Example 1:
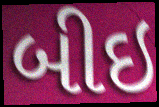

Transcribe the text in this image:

બીઇ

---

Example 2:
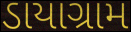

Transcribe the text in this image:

ડાયાગ્રામ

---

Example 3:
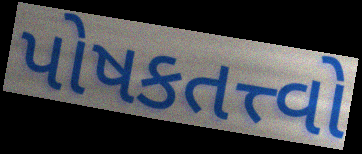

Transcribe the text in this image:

પોષકતત્ત્વો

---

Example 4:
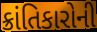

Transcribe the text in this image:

ક્રાંતિકારોની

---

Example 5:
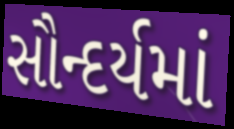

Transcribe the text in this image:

સૌન્દર્યમાં